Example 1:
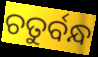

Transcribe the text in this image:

ଚତୁର୍ବନ୍ଧ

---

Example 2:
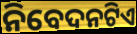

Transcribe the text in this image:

ନିବେଦନଟିଏ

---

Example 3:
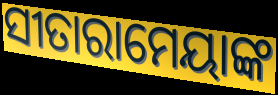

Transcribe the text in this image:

ସୀତାରାମେୟାଙ୍କ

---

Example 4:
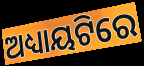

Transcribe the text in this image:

ଅଧ୍ୟାୟଟିରେ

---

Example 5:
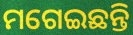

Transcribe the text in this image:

ମଗେଇଛନ୍ତି